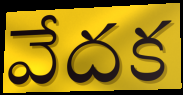
వేదక